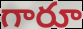
గారూ